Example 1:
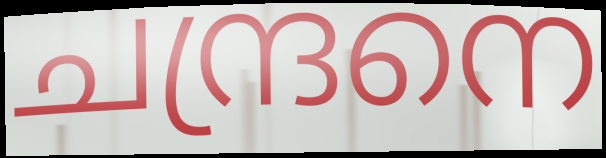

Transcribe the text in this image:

ചന്ദ്രനെ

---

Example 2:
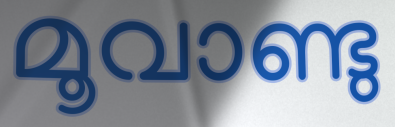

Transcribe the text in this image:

മൂവാണ്ടു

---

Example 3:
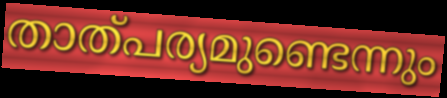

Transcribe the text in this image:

താത്പര്യമുണ്ടെന്നും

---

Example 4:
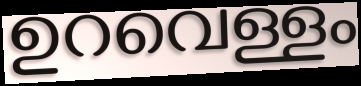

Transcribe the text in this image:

ഉറവെള്ളം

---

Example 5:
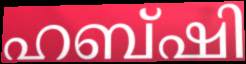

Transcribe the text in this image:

ഹബ്ഷി